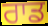
ਰਾਡ